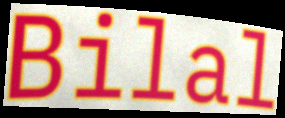
Bilal